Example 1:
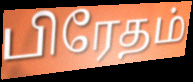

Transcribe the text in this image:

பிரேதம்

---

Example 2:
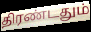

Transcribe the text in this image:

திரண்டதும்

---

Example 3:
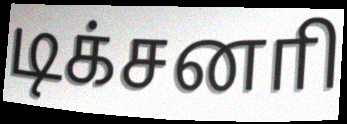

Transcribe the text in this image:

டிக்சனரி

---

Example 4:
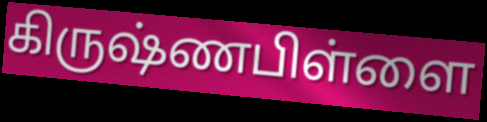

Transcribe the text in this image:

கிருஷ்ணபிள்ளை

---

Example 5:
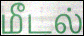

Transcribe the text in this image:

மீடல்